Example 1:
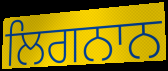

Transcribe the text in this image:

ਲਿਗਨਾਨ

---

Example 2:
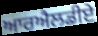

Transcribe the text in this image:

ਆਰਐਲਡੀਏ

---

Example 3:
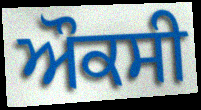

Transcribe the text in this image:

ਔਕਸੀ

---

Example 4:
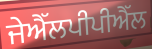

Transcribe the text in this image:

ਜੇਐੱਲਪੀਪੀਐੱਲ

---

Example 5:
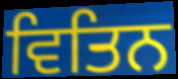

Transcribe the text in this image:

ਵਿਤਿਨ